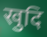
खुदि